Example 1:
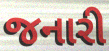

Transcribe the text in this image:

જનારી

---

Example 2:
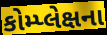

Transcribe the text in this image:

કોમ્પ્લેક્ષના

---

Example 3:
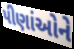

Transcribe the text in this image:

પીણાંઓને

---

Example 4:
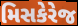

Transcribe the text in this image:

મિસકેરેજ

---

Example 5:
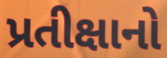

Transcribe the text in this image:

પ્રતીક્ષાનો